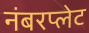
नंबरप्लेट